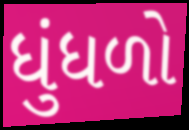
ધુંધળો